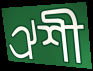
ঐশী